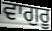
ਵਾਗੁਰੂ